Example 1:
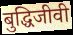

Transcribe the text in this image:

बुद्धिजीवी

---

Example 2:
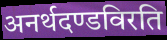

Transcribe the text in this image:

अनर्थदण्डविरति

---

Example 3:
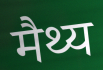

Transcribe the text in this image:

मैथ्य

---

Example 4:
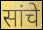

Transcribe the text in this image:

सांचे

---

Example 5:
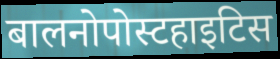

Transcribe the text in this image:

बालनोपोस्टहाइटिस